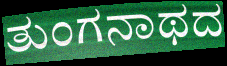
ತುಂಗನಾಥದ